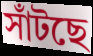
সাঁটছে